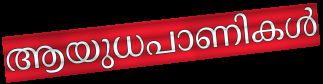
ആയുധപാണികൾ